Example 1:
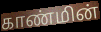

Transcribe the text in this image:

காண்மின்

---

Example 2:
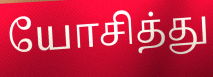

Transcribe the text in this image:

யோசித்து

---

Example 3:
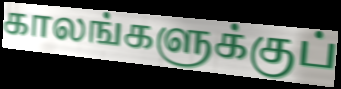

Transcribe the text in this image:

காலங்களுக்குப்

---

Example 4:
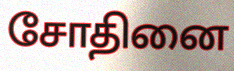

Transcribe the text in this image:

சோதினை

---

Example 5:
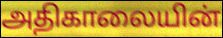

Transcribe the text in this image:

அதிகாலையின்